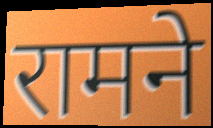
रामने